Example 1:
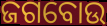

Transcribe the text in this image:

ଜଗବୋଉ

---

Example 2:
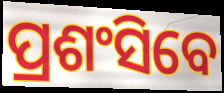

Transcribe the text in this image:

ପ୍ରଶଂସିବେ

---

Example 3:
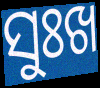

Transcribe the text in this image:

ସୁଃଖ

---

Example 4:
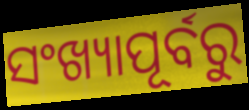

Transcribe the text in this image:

ସଂଖ୍ୟାପୂର୍ବରୁ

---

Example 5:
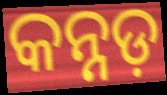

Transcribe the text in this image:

କନ୍ନଡ଼